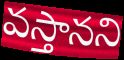
వస్తానని